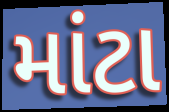
માંટા